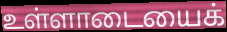
உள்ளாடையைக்